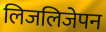
लिजलिजेपन